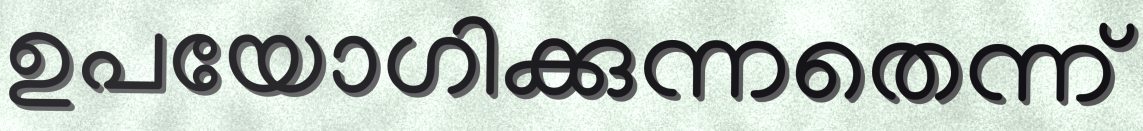
ഉപയോഗിക്കുന്നതെന്ന്